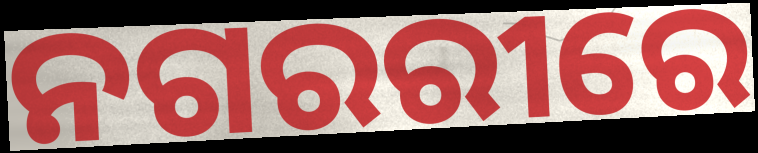
ନଗରରୀରେ